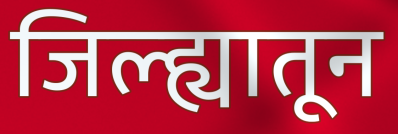
जिल्ह्यातून